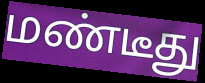
மண்டீது